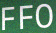
FFO